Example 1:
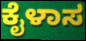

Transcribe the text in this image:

ಕೈಳಾಸ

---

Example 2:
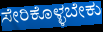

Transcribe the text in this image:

ಸೇರಿಕೊಳ್ಳಬೇಕು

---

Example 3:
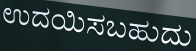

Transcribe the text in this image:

ಉದಯಿಸಬಹುದು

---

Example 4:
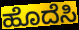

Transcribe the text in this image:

ಹೊದೆಸಿ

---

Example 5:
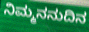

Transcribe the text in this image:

ನಿಮ್ಮನನುದಿನ